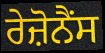
ਰੇਜ਼ੋਨੈਂਸ